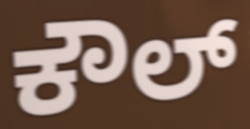
ಕೌಲ್